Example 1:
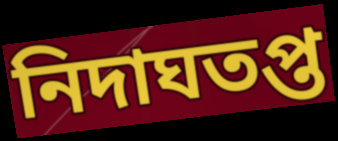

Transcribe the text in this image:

নিদাঘতপ্ত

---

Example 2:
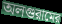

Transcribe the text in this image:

অলগুরামের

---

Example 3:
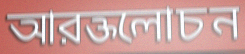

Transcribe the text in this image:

আরক্তলোচন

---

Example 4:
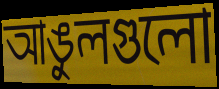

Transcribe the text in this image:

আঙুলগুলো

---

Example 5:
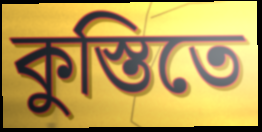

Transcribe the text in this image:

কুস্তিতে